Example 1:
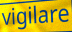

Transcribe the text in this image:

vigilare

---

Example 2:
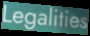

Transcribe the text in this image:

Legalities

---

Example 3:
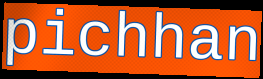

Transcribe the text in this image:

pichhan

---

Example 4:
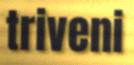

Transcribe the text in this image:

triveni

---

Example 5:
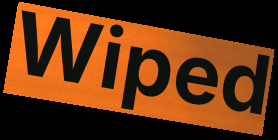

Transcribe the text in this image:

Wiped